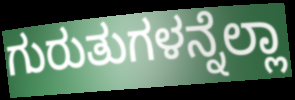
ಗುರುತುಗಳನ್ನೆಲ್ಲಾ